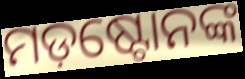
ମଡ଼ଷ୍ଟୋନଙ୍କ